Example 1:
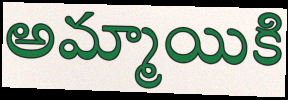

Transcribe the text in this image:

అమ్మాయికి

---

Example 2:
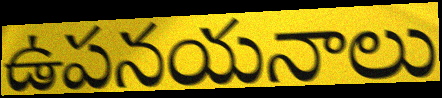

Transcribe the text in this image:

ఉపనయనాలు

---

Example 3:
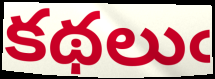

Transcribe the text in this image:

కథలుఁ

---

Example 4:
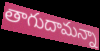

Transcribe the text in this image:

తాగుదామన్నా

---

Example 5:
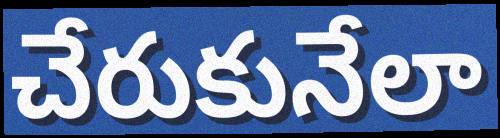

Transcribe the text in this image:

చేరుకునేలా